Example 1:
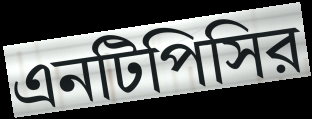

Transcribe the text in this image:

এনটিপিসির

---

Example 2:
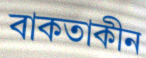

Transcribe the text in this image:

বাকতাকীন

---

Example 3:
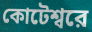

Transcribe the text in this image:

কোটেশ্বরে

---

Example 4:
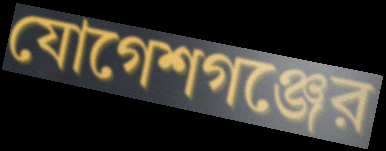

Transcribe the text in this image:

যোগেশগঞ্জের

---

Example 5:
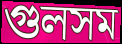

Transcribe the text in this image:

গুলসম